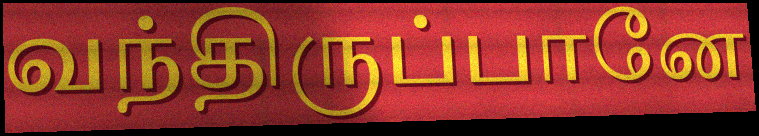
வந்திருப்பானே